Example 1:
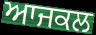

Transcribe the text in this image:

ਆਜਕਲ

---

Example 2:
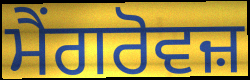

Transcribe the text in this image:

ਮੈਂਗਰੋਵਜ਼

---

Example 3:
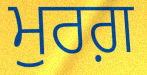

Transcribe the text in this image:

ਮੁਰਗ਼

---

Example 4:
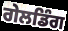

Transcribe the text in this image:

ਗੇਲਡਿੰਗ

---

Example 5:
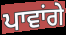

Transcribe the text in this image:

ਪਾਵਾਂਗੇ